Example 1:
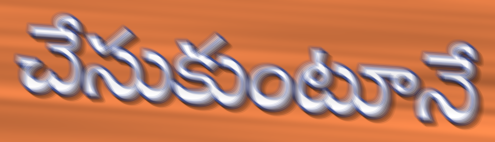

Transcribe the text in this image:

చేసుకుంటూనే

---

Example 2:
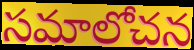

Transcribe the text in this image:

సమాలోచన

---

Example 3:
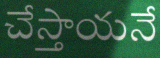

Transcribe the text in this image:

చేస్తాయనే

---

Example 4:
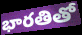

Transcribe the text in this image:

భారతితో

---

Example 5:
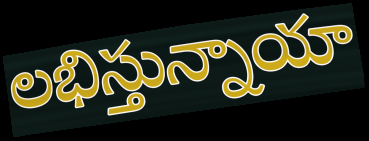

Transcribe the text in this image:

లభిస్తున్నాయా